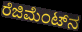
ರೆಜಿಮೆಂಟ್‌ನ